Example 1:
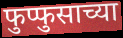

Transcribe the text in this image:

फुप्फुसाच्या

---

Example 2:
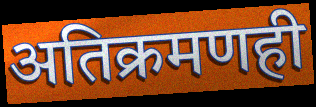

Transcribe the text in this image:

अतिक्रमणही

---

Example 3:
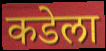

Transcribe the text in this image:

कडेला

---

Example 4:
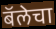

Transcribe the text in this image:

बॅलेचा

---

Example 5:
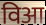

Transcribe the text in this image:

विआ